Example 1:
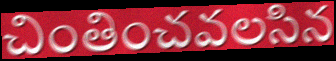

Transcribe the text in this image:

చింతించవలసిన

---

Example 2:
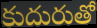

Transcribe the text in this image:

కుదురుతో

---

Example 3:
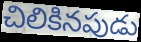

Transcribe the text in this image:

చిలికినపుడు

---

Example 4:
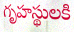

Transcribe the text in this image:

గృహస్థులకి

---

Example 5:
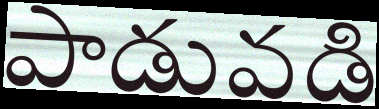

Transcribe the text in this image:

పాడువడి